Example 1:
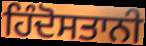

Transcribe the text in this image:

ਹਿੰਦੋਸਤਾਨੀ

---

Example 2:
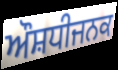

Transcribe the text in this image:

ਔਸ਼ਧੀਜਨਕ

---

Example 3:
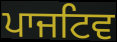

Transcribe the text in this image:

ਪਾਜਟਿਵ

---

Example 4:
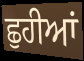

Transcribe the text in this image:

ਛੁਹੀਆਂ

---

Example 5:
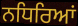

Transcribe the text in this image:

ਨਧਿਰਿਆਂ